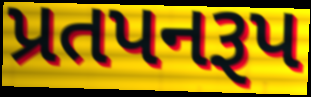
પ્રતપનરૂપ